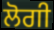
ਲੋਗੀ